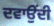
ਦਵਾਉਂਦੀ